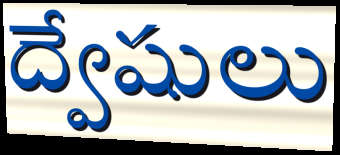
ద్వేషులు